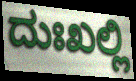
ದುಃಖಲ್ಲಿ